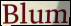
Blum